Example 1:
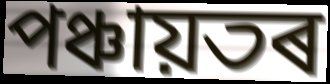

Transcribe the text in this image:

পঞ্চায়তৰ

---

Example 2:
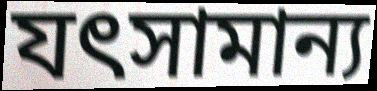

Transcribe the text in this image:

যৎসামান্য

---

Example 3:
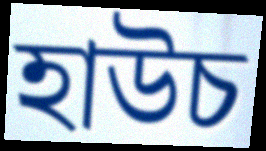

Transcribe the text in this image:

হাউচ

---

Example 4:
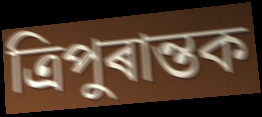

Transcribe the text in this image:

ত্ৰিপুৰান্তক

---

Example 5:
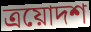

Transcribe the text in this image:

ত্ৰয়োদশ